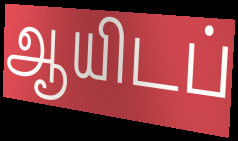
ஆயிடப்